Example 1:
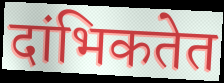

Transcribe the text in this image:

दांभिकतेत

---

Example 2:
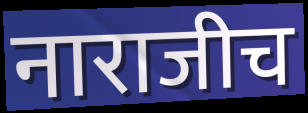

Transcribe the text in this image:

नाराजीच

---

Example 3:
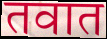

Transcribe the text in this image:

तवात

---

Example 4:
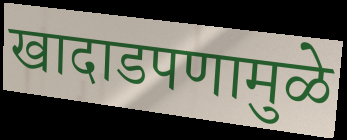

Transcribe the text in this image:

खादाडपणामुळे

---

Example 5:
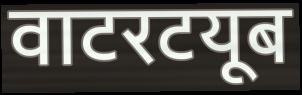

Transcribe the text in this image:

वाटरटयूब